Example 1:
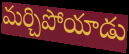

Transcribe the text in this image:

మర్చిపోయాడు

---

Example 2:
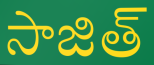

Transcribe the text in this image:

సాజిత్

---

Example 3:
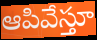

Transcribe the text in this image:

ఆపివేస్తూ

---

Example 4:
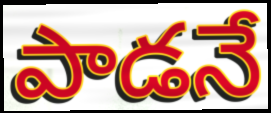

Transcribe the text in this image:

పాడనే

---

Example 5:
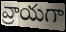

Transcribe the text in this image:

వ్రాయగా